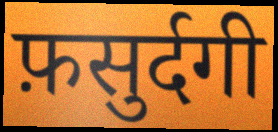
फ़सुर्दगी